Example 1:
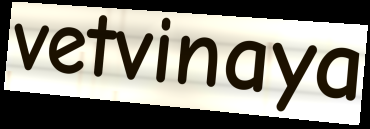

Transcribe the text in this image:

vetvinaya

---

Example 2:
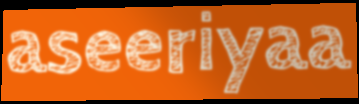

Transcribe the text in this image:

aseeriyaa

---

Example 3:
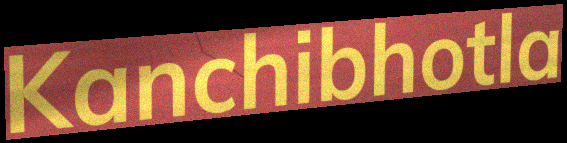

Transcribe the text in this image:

Kanchibhotla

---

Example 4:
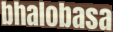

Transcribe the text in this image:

bhalobasa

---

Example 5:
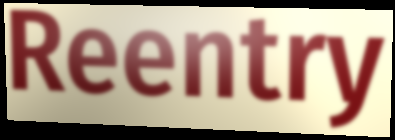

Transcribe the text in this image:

Reentry